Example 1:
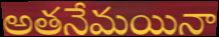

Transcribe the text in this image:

అతనేమయినా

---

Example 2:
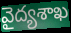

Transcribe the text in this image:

వైద్యశాఖ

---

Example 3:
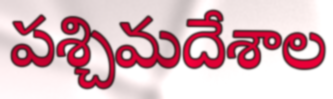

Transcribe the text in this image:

పశ్చిమదేశాల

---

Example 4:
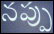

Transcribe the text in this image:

నప్పు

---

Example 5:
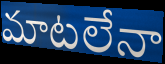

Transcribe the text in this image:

మాటలేనా